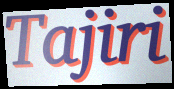
Tajiri